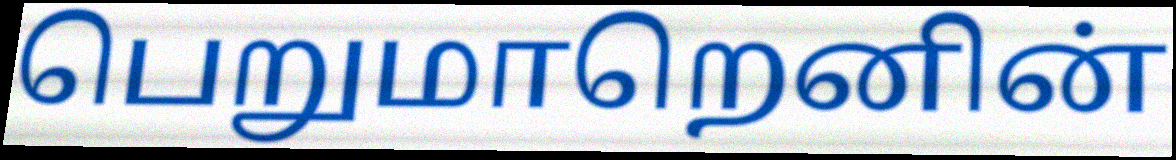
பெறுமாறெனின்